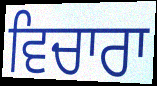
ਵਿਚਾਰਾ